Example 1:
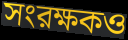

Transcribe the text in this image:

সংরক্ষকও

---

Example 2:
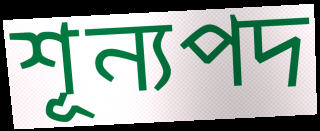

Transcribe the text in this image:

শূন্যপদ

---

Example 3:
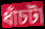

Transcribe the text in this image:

ধাঁচটা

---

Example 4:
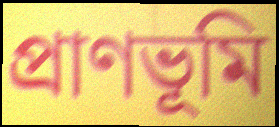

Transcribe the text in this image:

প্রাণভূমি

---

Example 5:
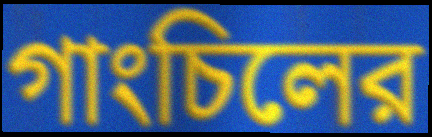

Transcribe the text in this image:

গাংচিলের